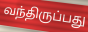
வந்திருப்பது